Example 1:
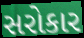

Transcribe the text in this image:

સરોકાર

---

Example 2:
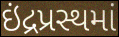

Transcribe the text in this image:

ઇંદ્રપ્રસ્થમાં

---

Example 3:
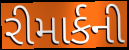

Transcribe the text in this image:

રીમાર્કની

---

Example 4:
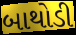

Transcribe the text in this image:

બાથોડી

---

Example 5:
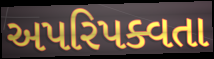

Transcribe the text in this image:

અપરિપક્વતા